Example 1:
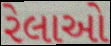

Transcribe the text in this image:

રેલાઓ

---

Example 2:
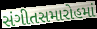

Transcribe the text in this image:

સંગીતસમારોહમાં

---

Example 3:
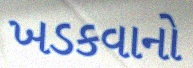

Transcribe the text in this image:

ખડકવાનો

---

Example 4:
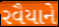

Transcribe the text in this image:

રવૈયાને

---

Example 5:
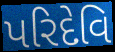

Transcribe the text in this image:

પરિદેવિ